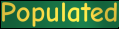
Populated